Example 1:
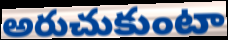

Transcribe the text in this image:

అరుచుకుంటా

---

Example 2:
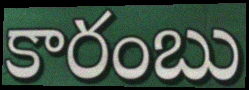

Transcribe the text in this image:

కారంబు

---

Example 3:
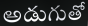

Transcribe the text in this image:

అడుగుతో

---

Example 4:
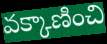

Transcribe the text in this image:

వక్కాణించి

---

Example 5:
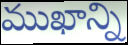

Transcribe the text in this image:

ముఖాన్ని